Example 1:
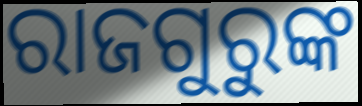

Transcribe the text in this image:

ରାଜଗୁରୁଙ୍କ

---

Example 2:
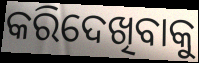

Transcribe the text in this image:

କରିଦେଖିବାକୁ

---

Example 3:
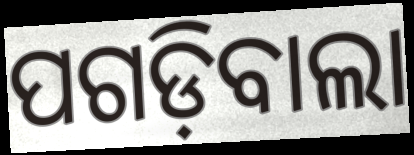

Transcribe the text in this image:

ପଗଡ଼ିବାଲା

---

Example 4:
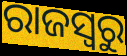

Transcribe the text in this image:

ରାଜସ୍ବରୁ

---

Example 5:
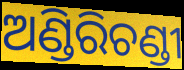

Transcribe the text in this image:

ଅଣ୍ଡିରିଚଣ୍ଡୀ